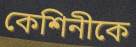
কেশিনীকে